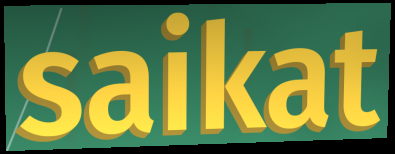
saikat